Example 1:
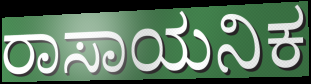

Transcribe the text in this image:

ರಾಸಾಯನಿಕ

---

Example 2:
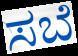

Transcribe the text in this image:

ಸಬೆ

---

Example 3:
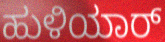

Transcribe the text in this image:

ಹುಳಿಯಾರ್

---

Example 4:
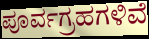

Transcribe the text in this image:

ಪೂರ್ವಗ್ರಹಗಳಿವೆ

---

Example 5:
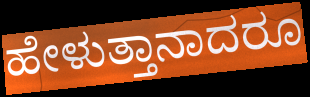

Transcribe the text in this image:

ಹೇಳುತ್ತಾನಾದರೂ